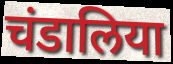
चंडालिया